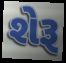
શેરૂ